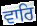
ਵਾਰਿ